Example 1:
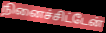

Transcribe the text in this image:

நினைச்சிட்டேன்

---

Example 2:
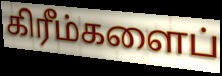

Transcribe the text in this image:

கிரீம்களைப்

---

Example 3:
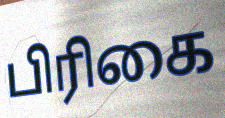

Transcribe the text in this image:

பிரிகை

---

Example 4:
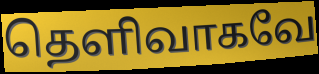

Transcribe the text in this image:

தெளிவாகவே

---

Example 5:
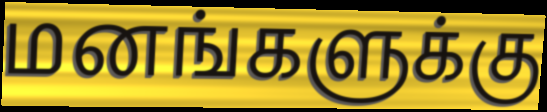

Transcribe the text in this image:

மனங்களுக்கு